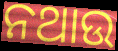
ନଥାଉ